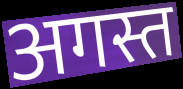
अगस्‍त